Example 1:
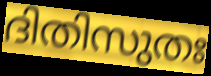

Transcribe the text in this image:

ദിതിസുതഃ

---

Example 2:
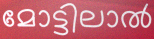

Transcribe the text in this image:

മോട്ടിലാൽ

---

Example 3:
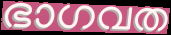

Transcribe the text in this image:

ഭാഗവത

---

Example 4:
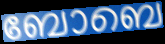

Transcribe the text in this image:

ബോബെ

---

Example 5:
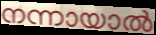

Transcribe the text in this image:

നന്നായാൽ